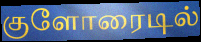
குளோரைடில்